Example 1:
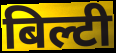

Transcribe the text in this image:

बिल्टी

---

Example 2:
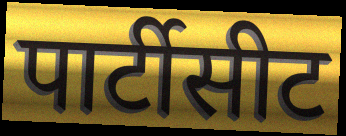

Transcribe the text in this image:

पार्टीसीट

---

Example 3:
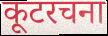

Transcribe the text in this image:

कूटरचना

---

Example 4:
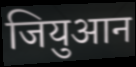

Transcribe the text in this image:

जियुआन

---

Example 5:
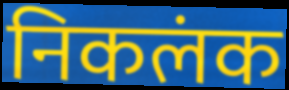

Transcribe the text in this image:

निकलंक